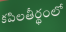
కపిలతీర్థంలో